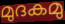
മുദകമു